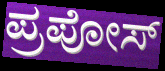
ಪ್ರಪೋಸ್